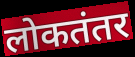
लोकतंतर